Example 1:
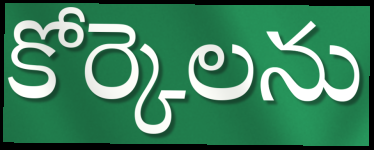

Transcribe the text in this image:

కోర్కెలను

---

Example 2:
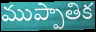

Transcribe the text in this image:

ముప్పాతిక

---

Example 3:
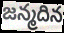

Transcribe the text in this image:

జన్మదిన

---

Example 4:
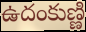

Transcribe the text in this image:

ఉదంకుణ్ణి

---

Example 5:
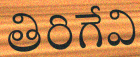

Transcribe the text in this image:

తిరిగేవి